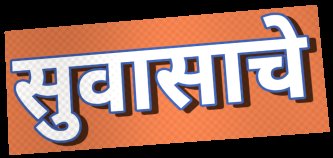
सुवासाचे